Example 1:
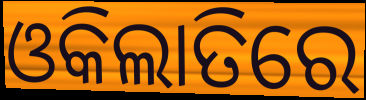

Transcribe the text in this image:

ଓକିଲାତିରେ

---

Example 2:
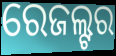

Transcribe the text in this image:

ରେଜଲ୍ଟର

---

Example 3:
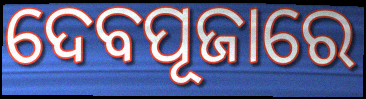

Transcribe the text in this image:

ଦେବପୂଜାରେ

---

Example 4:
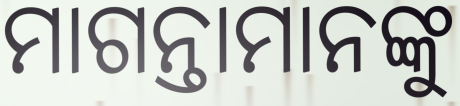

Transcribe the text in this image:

ମାଗନ୍ତାମାନଙ୍କୁ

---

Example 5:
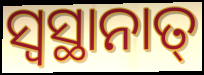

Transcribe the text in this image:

ସ୍ଵସ୍ଥାନାତ୍